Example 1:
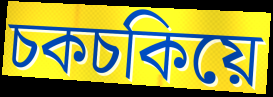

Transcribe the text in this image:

চকচকিয়ে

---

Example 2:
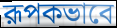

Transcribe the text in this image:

রূপকভাবে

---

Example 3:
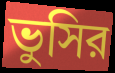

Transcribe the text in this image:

ভুসির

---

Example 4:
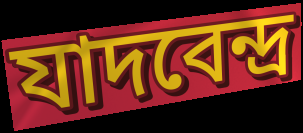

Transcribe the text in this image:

যাদবেন্দ্র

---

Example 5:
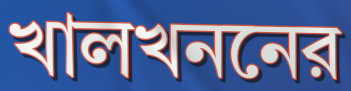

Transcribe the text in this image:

খালখননের